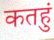
कतहुं